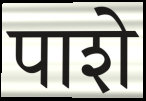
पाशे